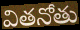
వితనోతు